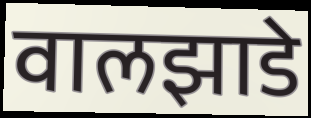
वालझाडे